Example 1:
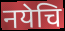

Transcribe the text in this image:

नयेचि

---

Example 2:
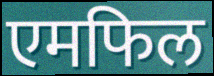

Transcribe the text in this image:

एमफिल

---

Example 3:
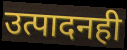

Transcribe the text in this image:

उत्पादनही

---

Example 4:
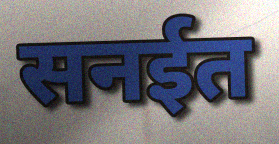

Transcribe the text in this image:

सनईत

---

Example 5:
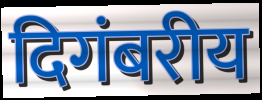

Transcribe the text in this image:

दिगंबरीय